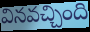
వినవచ్చింది